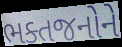
ભક્તજનોને